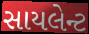
સાયલેન્ટ